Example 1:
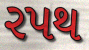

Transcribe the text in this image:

રપથ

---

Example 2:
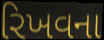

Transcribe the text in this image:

રિખવના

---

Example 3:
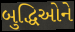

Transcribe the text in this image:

બુદ્ધિઓને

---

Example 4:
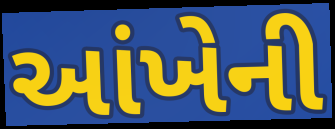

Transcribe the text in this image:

આંખેની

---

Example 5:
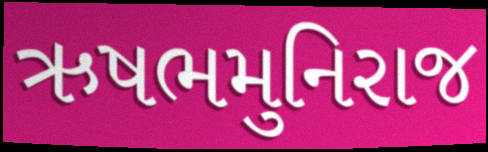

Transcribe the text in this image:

ઋષભમુનિરાજ